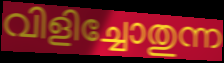
വിളിച്ചോതുന്ന